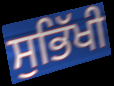
ਸੁਭਿੱਖੀ